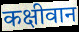
कक्षीवान